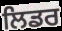
ਲਿਡਰ